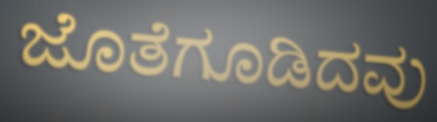
ಜೊತೆಗೂಡಿದವು